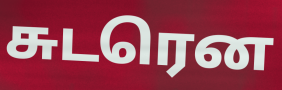
சுடரென